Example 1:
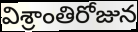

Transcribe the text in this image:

విశ్రాంతిరోజున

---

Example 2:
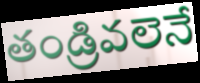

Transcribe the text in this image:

తండ్రివలెనే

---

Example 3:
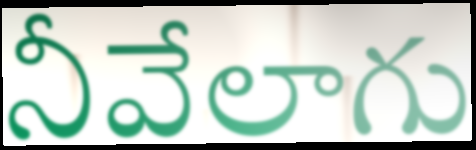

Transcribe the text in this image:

నీవేలాగు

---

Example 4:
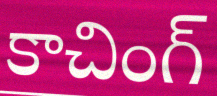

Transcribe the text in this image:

కాచింగ్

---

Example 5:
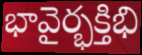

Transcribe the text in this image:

భావైర్భక్తిభి